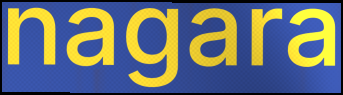
nagara